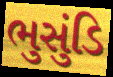
ભુસુંડિ